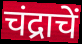
चंद्राचें